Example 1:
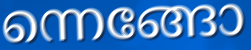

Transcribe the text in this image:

ന്നെങ്ങോ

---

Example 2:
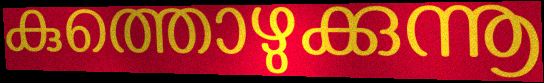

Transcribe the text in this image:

കുത്തൊഴുക്കുന്നൂ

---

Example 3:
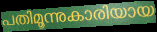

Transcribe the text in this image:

പതിമൂന്നുകാരിയായ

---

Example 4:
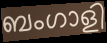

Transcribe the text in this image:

ബംഗാളി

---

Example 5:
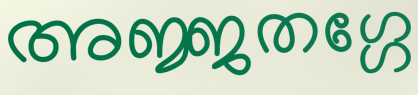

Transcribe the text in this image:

അജ്ജതഗ്ഗേ